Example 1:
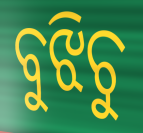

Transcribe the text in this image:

ବୁଝିଚୁ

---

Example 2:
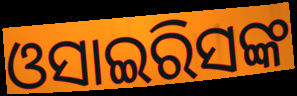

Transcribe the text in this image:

ଓସାଇରିସଙ୍କ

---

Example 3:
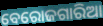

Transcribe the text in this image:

ବେରୋଜଗାରିଆ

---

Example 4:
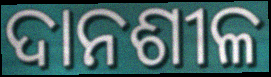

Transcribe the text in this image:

ଦାନଶୀଳ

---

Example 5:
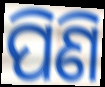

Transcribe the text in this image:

ପିଣି